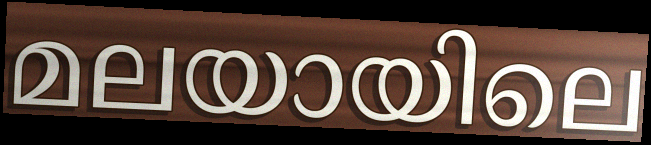
മലയായിലെ